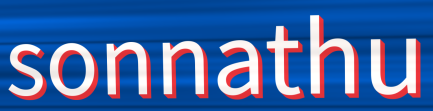
sonnathu